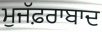
ਮੁਜੱਫ਼ਰਾਬਾਦ